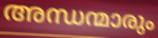
അന്ധന്മാരും